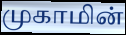
முகாமின்